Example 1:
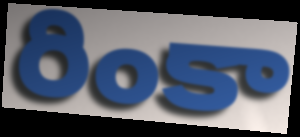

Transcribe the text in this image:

రింకా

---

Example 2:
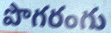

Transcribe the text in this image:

పొగరంగు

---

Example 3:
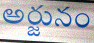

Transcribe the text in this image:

అర్జునం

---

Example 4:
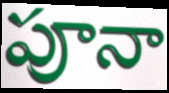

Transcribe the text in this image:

పూనా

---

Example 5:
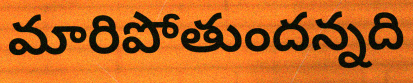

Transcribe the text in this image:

మారిపోతుందన్నది